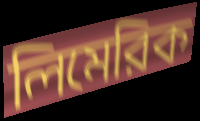
লিমেরিক